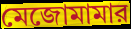
মেজোমামার